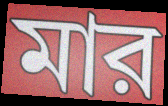
মার